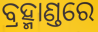
ବ୍ରହ୍ମାଣ୍ଡରେ